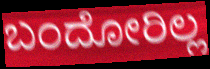
ಬಂದೋರಿಲ್ಲ